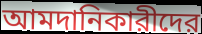
আমদানিকারীদের